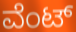
ವೆಂಟ್